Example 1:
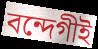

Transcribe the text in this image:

বন্দেগীই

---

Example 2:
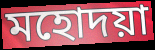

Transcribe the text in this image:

মহোদয়া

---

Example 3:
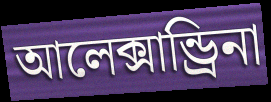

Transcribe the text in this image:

আলেক্সান্ড্রিনা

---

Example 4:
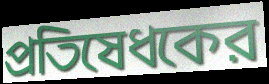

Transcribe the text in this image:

প্রতিষেধকের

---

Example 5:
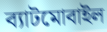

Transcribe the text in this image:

ব্যাটমোবাইল